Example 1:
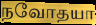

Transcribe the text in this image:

நவோதயா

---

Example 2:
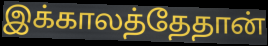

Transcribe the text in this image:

இக்காலத்தேதான்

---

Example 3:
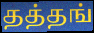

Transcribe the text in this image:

தத்தங்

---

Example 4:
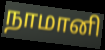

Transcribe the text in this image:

நாமானி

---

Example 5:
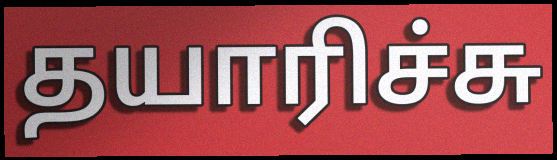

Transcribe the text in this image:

தயாரிச்சு